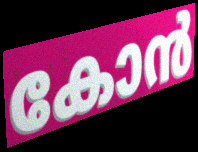
കോൻ